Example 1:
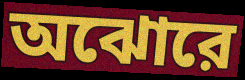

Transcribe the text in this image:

অঝোরে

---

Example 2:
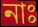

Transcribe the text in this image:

নাঃ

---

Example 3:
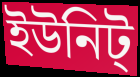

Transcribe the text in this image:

ইউনিট্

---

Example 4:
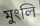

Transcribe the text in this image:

মুংলি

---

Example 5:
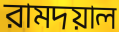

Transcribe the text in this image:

রামদয়াল